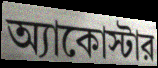
অ্যাকোস্টার